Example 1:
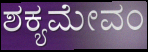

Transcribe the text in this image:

ಶಕ್ಯಮೇವಂ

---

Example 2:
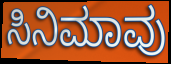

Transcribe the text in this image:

ಸಿನಿಮಾವು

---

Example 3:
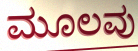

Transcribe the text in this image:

ಮೂಲವು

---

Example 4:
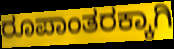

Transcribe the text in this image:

ರೂಪಾಂತರಕ್ಕಾಗಿ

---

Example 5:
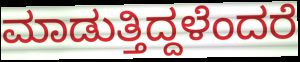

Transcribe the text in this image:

ಮಾಡುತ್ತಿದ್ದಳೆಂದರೆ